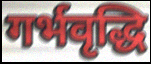
गर्भवृद्धि